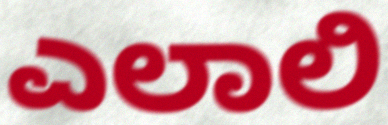
ಎಲಾಲಿ